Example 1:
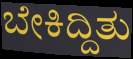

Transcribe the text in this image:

ಬೇಕಿದ್ದಿತು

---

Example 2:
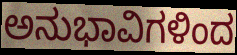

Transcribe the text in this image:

ಅನುಭಾವಿಗಳಿಂದ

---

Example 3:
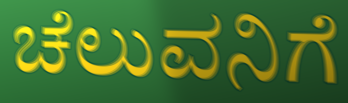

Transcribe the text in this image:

ಚೆಲುವನಿಗೆ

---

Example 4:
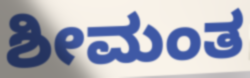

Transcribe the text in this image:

ಶೀಮಂತ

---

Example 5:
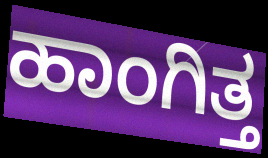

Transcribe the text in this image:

ಹಾಂಗಿತ್ತ